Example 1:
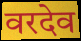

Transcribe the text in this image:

वरदेव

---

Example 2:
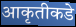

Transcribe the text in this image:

आकृतीकडे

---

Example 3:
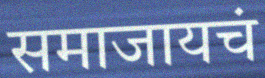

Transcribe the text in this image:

समाजायचं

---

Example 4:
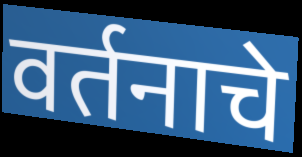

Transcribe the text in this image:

वर्तनाचे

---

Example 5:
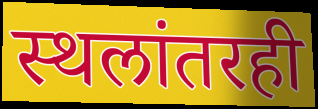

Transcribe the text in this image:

स्थलांतरही